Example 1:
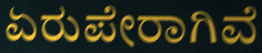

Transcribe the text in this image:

ಏರುಪೇರಾಗಿವೆ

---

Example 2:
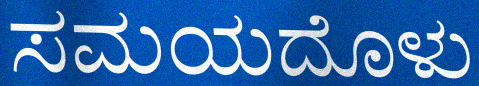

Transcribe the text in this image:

ಸಮಯದೊಳು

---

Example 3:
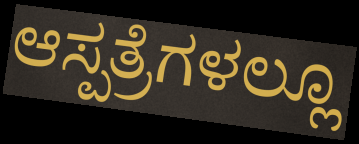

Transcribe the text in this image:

ಆಸ್ಪತ್ರೆಗಳಲ್ಲೂ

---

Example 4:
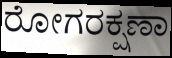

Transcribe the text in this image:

ರೋಗರಕ್ಷಣಾ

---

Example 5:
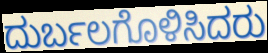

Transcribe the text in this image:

ದುರ್ಬಲಗೊಳಿಸಿದರು